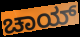
ಚಾಯ್